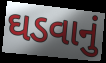
ઘડવાનું